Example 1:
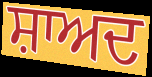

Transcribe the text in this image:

ਸ਼ਾਅਦ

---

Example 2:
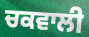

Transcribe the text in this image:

ਚਕਵਾਲੀ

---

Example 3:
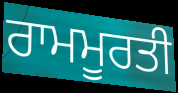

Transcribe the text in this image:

ਰਾਮਮੂਰਤੀ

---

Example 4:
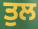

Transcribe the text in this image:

ਤੁਲ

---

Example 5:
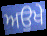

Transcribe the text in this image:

ਅਉਖੇ